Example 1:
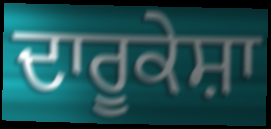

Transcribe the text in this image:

ਦਾਰੂਕੇਸ਼ਾ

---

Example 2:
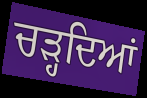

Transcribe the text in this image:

ਚੜ੍ਹਦਿਆਂ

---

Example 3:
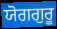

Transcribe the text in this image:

ਯੋਗਗੁਰੂ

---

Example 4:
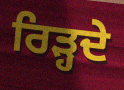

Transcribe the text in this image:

ਰਿੜ੍ਹਦੇ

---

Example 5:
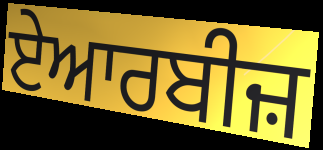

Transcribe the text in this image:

ਏਆਰਬੀਜ਼